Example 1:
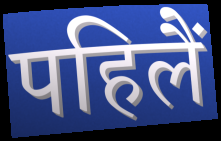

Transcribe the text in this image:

पहिलैं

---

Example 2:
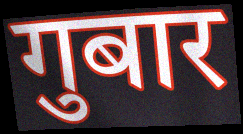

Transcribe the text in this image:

गुबार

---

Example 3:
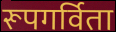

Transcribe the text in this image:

रूपगर्विता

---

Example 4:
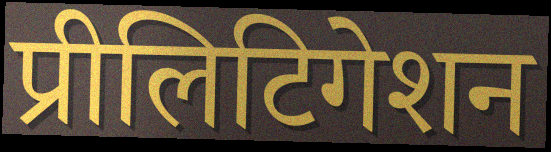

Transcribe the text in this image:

प्रीलिटिगेशन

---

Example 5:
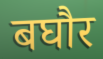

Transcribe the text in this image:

बघौर